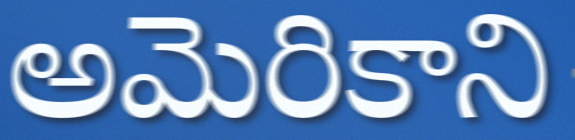
అమెరికాని